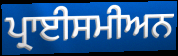
ਪ੍ਰਾਈਸਮੀਅਨ